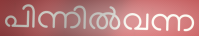
പിന്നിൽവന്ന